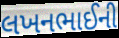
લખનભાઈની